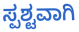
ಸ್ಪಶ್ಟವಾಗಿ